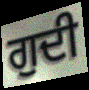
ਗੁਦੀ